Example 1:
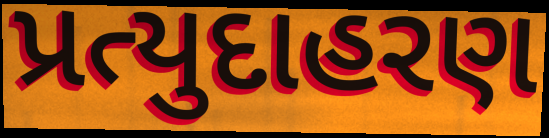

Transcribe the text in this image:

પ્રત્યુદાહરણ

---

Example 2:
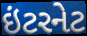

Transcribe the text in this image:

ઇંટરનેટ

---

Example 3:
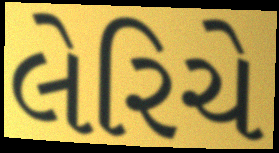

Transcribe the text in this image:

લેરિચે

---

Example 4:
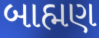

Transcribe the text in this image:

બાહ્મણ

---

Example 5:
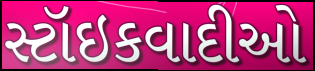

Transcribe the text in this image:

સ્ટૉઇકવાદીઓ